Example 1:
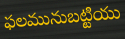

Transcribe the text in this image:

ఫలమునుబట్టియు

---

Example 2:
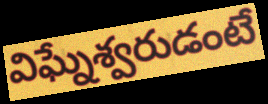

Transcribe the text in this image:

విఘ్నేశ్వరుడంటే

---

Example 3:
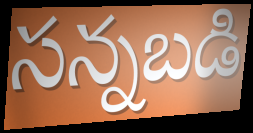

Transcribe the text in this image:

సన్నబడి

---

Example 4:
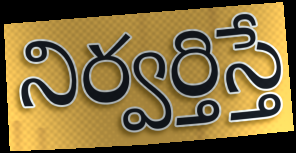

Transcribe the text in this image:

నిర్వర్తిస్తే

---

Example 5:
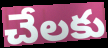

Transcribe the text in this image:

చేలకు